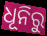
ଧୂନିରୁ